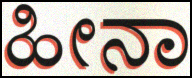
ಹೀನಾ